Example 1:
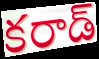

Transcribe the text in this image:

కరాడ్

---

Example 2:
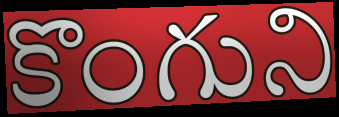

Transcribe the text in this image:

కొంగుని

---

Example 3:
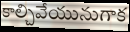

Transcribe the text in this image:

కాల్చివేయునుగాక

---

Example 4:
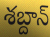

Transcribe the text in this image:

శబ్దాన్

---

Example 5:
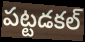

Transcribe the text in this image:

పట్టడకల్